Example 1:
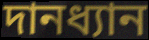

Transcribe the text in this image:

দানধ্যান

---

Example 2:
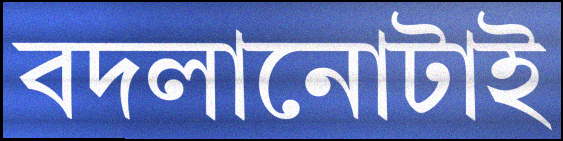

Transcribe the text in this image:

বদলানোটাই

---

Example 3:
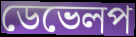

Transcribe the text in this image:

ডেভেলপ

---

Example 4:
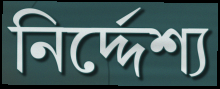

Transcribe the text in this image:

নির্দ্দেশ্য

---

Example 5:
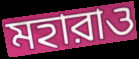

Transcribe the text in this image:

মহারাও